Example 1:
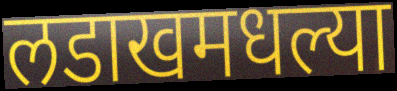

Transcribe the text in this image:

लडाखमधल्या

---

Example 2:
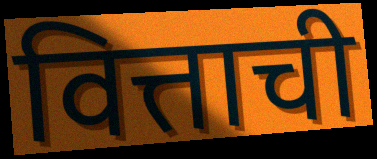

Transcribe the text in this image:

वित्ताची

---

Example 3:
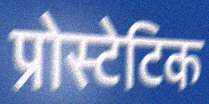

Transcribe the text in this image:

प्रोस्टेटिक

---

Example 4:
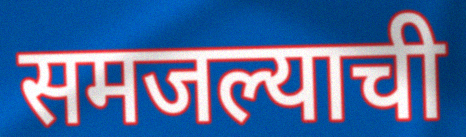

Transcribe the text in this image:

समजल्याची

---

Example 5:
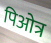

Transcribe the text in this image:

पिओत्र